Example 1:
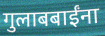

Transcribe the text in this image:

गुलाबबाईंना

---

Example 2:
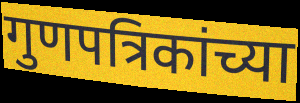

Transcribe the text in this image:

गुणपत्रिकांच्या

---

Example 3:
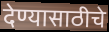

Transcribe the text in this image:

देण्यासाठीचे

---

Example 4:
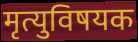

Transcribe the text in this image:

मृत्युविषयक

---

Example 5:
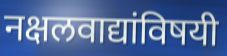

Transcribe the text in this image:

नक्षलवाद्यांविषयी